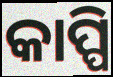
କାପ୍ପି